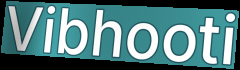
Vibhooti